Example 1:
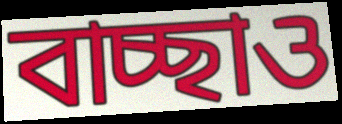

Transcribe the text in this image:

বাচ্ছাও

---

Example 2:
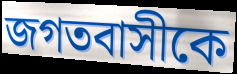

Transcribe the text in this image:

জগতবাসীকে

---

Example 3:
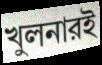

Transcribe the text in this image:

খুলনারই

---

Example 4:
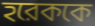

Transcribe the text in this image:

হরেককে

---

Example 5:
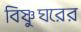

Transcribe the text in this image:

বিষ্ণুঘরের